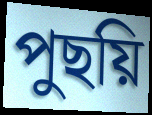
পুছয়ি